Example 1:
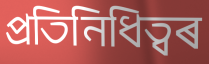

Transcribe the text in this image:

প্ৰতিনিধিত্বৰ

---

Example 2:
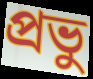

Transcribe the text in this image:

প্ৰভু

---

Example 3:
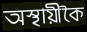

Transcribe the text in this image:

অস্থায়ীকৈ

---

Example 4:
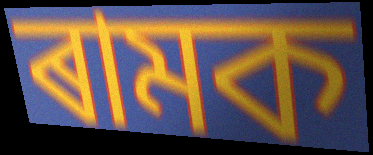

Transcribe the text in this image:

ৰামক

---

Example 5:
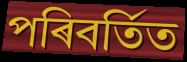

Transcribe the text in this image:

পৰিবৰ্তিত